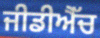
ਜੀਡੀਐੱਚ